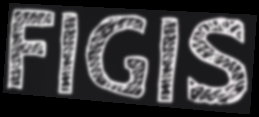
FIGIS